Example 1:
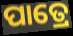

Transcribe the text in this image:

ପାତ୍ରେ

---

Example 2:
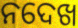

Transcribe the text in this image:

ନଦେଖ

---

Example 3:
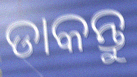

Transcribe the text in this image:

ଡାକନ୍ତୁ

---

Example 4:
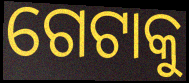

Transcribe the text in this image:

ଗେଟାକୁ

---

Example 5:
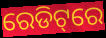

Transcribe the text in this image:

ରେଡିଟ୍‌ରେ